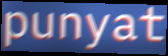
punyat